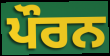
ਪੌਰਨ